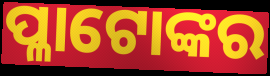
ପ୍ଳାଟୋଙ୍କର